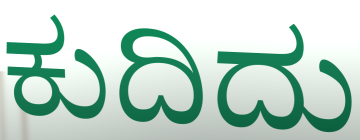
ಕುದಿದು